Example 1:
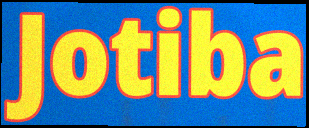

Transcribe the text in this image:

Jotiba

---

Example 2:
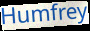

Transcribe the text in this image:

Humfrey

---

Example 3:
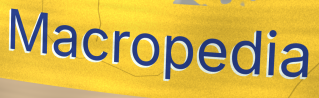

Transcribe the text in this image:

Macropedia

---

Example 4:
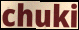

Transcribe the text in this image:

chuki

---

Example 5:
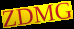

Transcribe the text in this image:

ZDMG